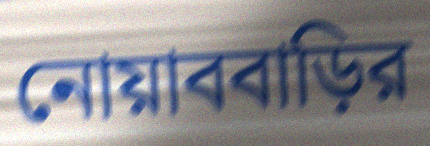
নোয়াববাড়ির